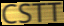
CSTT